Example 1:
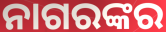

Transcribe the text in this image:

ନାଗରଙ୍କର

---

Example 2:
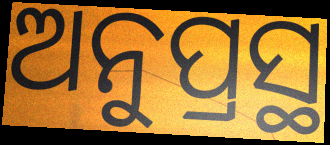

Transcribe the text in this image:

ଅନୁପ୍ରସ୍ଥ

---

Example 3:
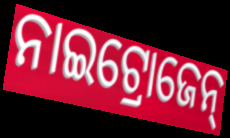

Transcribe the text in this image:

ନାଇଟ୍ରୋଜେନ୍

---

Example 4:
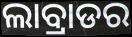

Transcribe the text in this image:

ଲାବ୍ରାଡର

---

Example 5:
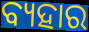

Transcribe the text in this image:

ବ୍ୟହାର